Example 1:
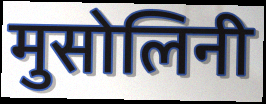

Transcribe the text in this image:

मुसोलिनी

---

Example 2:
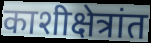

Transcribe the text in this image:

काशीक्षेत्रांत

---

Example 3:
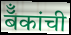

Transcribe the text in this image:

बॅँकांची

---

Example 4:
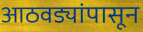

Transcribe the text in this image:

आठवड्यांपासून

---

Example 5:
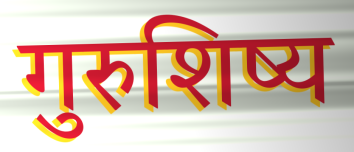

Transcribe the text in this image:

गुरुशिष्य